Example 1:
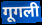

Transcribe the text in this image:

गूगली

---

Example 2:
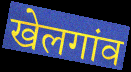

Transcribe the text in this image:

खेलगांव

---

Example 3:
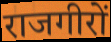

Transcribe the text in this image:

राजगीरों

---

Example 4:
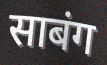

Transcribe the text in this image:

साबंग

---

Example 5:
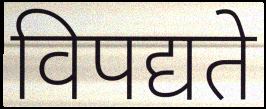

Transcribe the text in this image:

विपद्यते